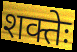
शक्तेः